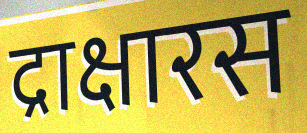
द्राक्षारस